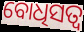
ବୋଧିସତ୍ୱ